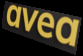
avea